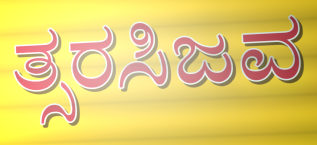
ತ್ಸರಸಿಜವ